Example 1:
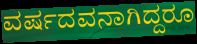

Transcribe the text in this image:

ವರ್ಷದವನಾಗಿದ್ದರೂ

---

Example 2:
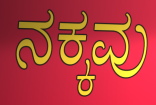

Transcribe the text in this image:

ನಕ್ಕವು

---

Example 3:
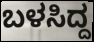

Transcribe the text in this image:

ಬಳಸಿದ್ದ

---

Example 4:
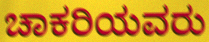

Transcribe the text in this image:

ಚಾಕರಿಯವರು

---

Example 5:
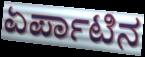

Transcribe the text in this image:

ಏರ್ಪಾಟಿನ